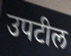
उपटील